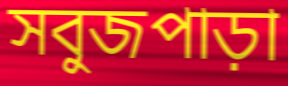
সবুজপাড়া